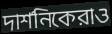
দার্শনিকেরাও